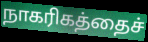
நாகரிகத்தைச்